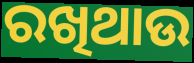
ରଖିଥାଉ